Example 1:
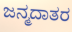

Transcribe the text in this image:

ಜನ್ಮದಾತರ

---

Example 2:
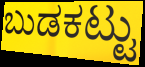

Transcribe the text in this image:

ಬುಡಕಟ್ಟು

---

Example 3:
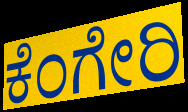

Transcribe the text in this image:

ಕೆಂಗೇರಿ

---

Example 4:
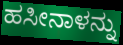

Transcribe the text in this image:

ಹಸೀನಾಳನ್ನು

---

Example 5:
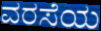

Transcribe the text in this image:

ವರಸೆಯ